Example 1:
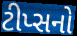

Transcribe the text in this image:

ટીપ્સનો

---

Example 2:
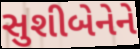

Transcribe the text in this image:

સુશીબેનેને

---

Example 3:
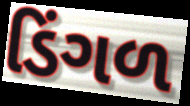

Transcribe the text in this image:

ડિંગળ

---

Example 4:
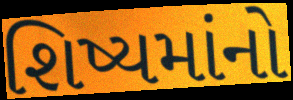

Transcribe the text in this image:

શિષ્યમાંનો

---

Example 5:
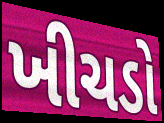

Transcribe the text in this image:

ખીચડો